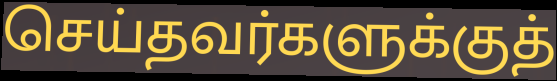
செய்தவர்களுக்குத்